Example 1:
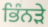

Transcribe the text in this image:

ਭਿੰਨੜੇ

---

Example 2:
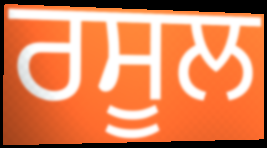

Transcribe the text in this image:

ਰਸੂਲ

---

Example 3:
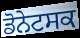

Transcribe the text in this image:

ਡੋਨੇਟਸਕ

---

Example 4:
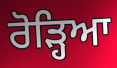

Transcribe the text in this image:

ਰੋੜ੍ਹਿਆ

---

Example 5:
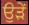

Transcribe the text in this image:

ਉੜੇਂ